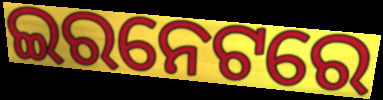
ଇରନେଟରେ